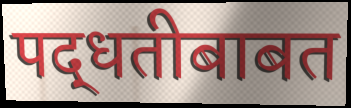
पद्धतीबाबत